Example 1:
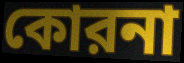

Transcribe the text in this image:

কোরনা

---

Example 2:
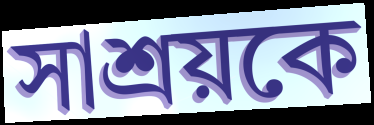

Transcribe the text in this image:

সাশ্রয়কে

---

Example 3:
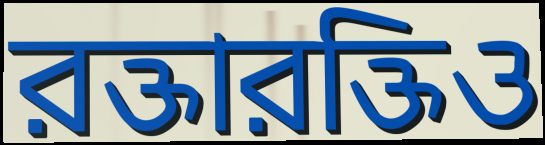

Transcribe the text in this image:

রক্তারক্তিও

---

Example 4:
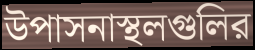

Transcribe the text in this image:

উপাসনাস্থলগুলির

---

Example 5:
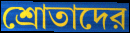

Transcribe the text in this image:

শ্রোতাদের